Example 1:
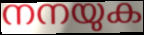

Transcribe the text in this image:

നനയുക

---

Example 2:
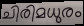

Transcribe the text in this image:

ചിരിമധുരം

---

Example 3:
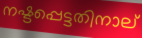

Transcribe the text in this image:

നഷ്ടപ്പെട്ടതിനാല്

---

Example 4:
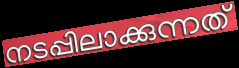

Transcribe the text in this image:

നടപ്പിലാക്കുന്നത്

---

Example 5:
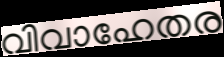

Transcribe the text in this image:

വിവാഹേതര